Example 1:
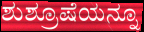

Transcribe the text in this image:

ಶುಶ್ರೂಷೆಯನ್ನೂ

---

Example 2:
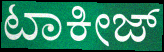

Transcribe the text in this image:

ಟಾಕೀಜ್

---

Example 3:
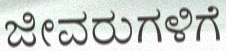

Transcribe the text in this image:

ಜೀವರುಗಳಿಗೆ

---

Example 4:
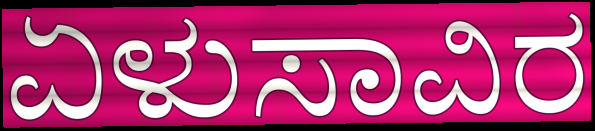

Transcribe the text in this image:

ಏಳುಸಾವಿರ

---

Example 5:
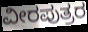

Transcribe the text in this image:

ವೀರಪುತ್ರರ